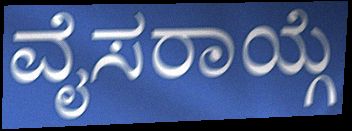
ವೈಸರಾಯ್ಗೆ